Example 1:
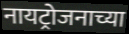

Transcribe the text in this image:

नायट्रोजनाच्या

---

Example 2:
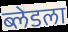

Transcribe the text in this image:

ब्लेडला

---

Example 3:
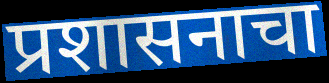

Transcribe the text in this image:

प्रशासनाचा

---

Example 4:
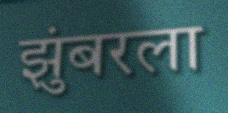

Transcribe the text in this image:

झुंबरला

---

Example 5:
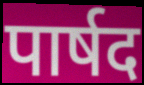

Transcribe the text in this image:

पार्षद